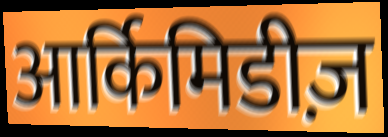
आर्किमिडीज़